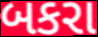
બકરા